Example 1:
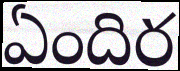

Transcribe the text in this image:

ఏందిర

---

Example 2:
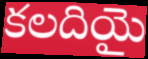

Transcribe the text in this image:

కలదియై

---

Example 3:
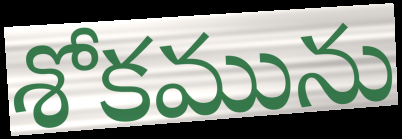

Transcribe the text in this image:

శోకమును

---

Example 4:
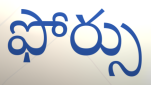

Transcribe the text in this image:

ఫోర్సు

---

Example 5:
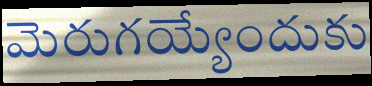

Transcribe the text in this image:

మెరుగయ్యేందుకు